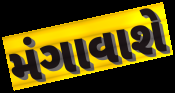
મંગાવાશે